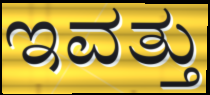
ಇವತ್ತು